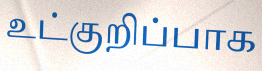
உட்குறிப்பாக